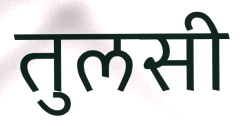
तुलसी